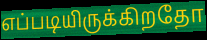
எப்படியிருக்கிறதோ